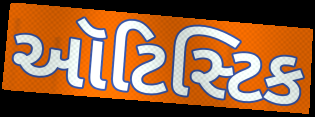
ઑટિસ્ટિક